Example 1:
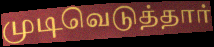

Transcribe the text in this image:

முடிவெடுத்தார்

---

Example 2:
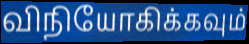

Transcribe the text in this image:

விநியோகிக்கவும்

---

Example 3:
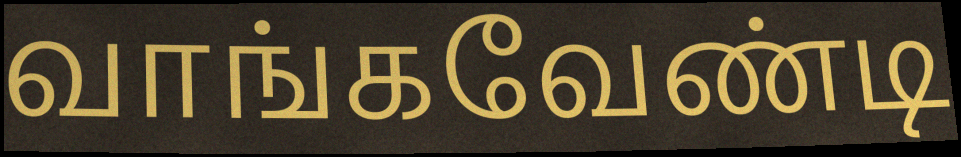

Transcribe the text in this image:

வாங்கவேண்டி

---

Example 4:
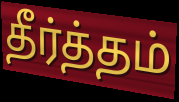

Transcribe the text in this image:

தீர்த்தம்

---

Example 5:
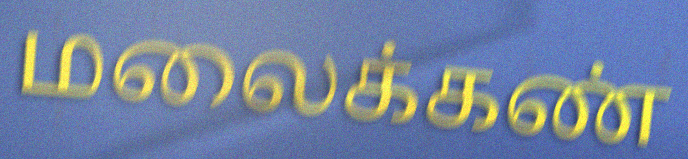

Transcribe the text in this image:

மலைக்கண்